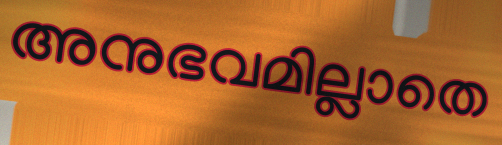
അനുഭവമില്ലാതെ